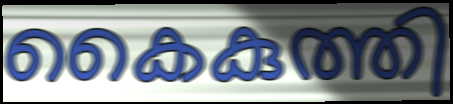
കൈകുത്തി